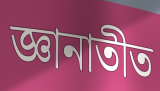
জ্ঞানাতীত